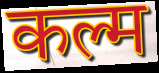
कल्म